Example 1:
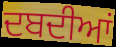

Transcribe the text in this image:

ਦਬਦੀਆਂ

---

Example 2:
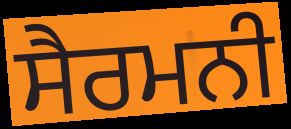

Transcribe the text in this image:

ਸੈਰਮਨੀ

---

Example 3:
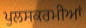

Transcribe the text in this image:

ਪੁਲਸਕਰਮੀਆਂ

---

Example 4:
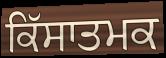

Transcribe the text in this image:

ਕਿੱਸਾਤਮਕ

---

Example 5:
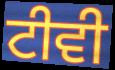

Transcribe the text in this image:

ਟੀਵੀ